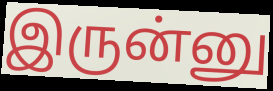
இருன்னு